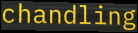
chandling